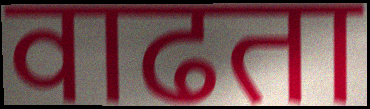
वाढता